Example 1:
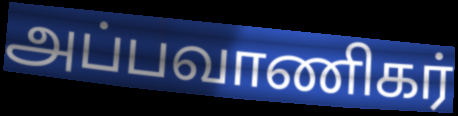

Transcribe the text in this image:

அப்பவாணிகர்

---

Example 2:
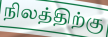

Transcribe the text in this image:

நிலத்திற்கு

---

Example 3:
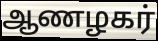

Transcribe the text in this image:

ஆணழகர்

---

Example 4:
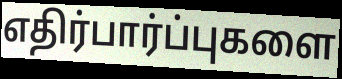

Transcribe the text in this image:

எதிர்பார்ப்புகளை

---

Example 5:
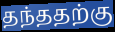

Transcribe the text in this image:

தந்ததற்கு